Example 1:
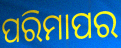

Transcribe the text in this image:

ପରିମାପର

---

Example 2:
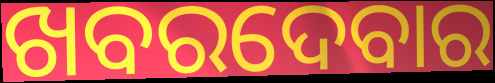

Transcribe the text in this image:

ଖବରଦେବାର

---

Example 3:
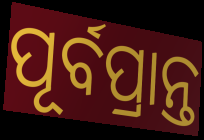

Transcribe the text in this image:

ପୂର୍ବପ୍ରାନ୍ତ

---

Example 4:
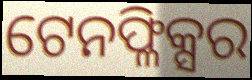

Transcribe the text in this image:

ଟେନଫ୍ଳିକ୍ସର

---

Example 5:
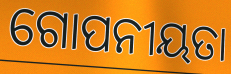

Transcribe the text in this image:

ଗୋପନୀୟତା